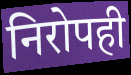
निरोपही